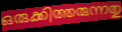
ഒരുക്കിത്തരുന്നതു